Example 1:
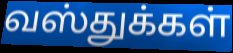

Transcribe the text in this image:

வஸ்துக்கள்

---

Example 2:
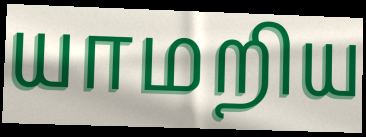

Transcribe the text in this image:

யாமறிய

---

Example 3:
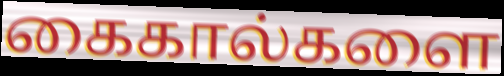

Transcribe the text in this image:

கைகால்களை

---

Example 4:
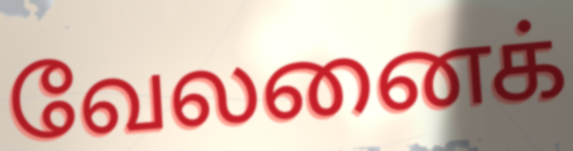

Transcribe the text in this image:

வேலனைக்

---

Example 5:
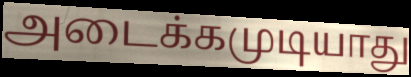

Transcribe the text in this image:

அடைக்கமுடியாது